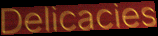
Delicacies